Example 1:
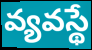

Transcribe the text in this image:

వ్యవస్థే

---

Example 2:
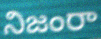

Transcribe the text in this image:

నిజంరా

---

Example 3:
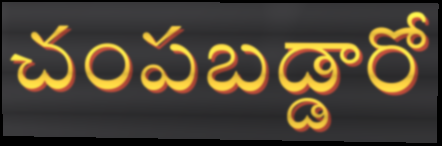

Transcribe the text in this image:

చంపబడ్డారో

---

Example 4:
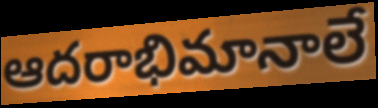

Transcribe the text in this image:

ఆదరాభిమానాలే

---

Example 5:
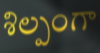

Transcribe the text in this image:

శిల్పంగా